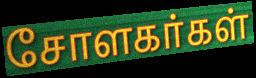
சோளகர்கள்